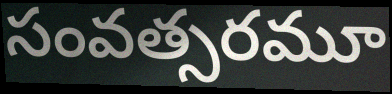
సంవత్సరమూ